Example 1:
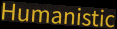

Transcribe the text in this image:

Humanistic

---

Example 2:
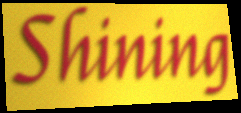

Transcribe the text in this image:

Shining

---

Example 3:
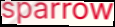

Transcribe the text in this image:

sparrow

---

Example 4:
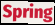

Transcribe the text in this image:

Spring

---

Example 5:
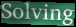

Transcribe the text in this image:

Solving